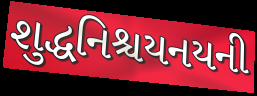
શુદ્ધનિશ્ચયનયની